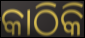
କାଠିକି